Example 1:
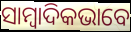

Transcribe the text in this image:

ସାମ୍ୱାଦିକଭାବେ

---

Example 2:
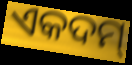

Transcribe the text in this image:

ଏକଦମ୍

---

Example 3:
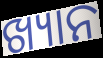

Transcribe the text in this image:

ଖ୍ୟାନ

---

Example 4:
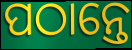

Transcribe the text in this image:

ପଠାନ୍ତେ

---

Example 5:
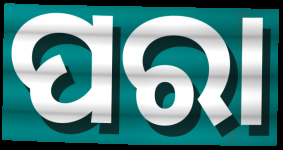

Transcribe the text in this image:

ପରା